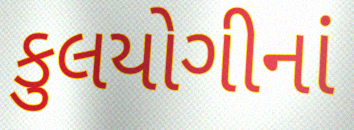
કુલયોગીનાં